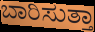
ಬಾರಿಸುತ್ತಾ